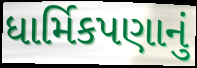
ધાર્મિકપણાનું